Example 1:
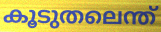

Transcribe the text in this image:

കൂടുതലെന്ത്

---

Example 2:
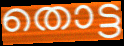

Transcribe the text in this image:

തൊട്ട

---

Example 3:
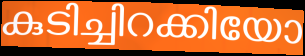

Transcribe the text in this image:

കുടിച്ചിറക്കിയോ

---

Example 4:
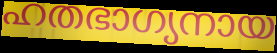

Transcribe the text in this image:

ഹതഭാഗ്യനായ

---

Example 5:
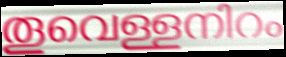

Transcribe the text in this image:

തൂവെള്ളനിറം